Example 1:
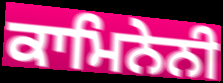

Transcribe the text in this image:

ਕਾਮਿਨੇਨੀ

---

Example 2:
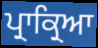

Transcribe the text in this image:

ਪ੍ਰਾਕ੍ਰਿਆ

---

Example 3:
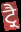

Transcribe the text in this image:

ਟ੍ਰੈ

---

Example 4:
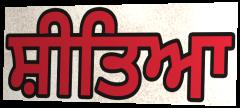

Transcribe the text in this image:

ਸ਼ੀਤਿਆ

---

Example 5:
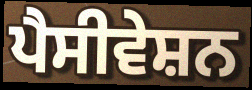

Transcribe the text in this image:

ਪੈਸੀਵੇਸ਼ਨ